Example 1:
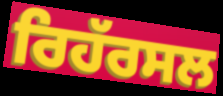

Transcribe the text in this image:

ਰਿਹੱਰਸਲ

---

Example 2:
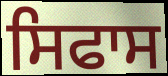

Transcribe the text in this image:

ਸਿਫਾਸ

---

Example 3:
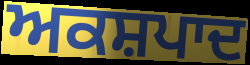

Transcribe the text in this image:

ਅਕਸ਼ਪਾਦ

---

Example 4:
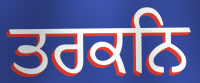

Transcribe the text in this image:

ਤਰਕਨਿ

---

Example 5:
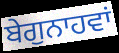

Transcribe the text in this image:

ਬੇਗੁਨਾਹਵਾਂ